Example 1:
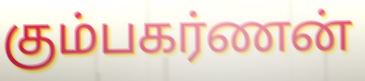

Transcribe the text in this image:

கும்பகர்ணன்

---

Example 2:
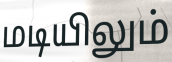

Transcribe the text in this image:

மடியிலும்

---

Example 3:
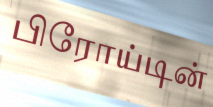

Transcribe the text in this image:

பிரோய்டின்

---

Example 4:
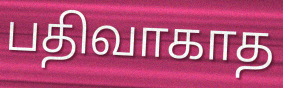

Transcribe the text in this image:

பதிவாகாத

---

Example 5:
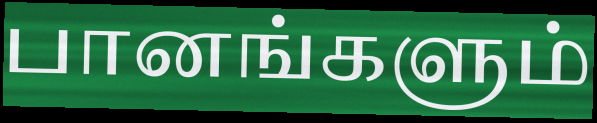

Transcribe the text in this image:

பானங்களும்